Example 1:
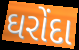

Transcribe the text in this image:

ઘરોંદા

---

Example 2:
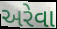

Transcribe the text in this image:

અરેવા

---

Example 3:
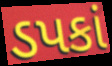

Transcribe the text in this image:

ડપકાં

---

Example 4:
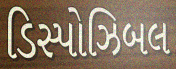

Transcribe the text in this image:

ડિસ્પોઝિબલ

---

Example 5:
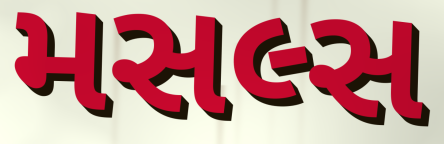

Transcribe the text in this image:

મસલ્સ